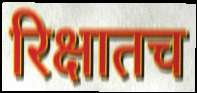
रिक्षातच